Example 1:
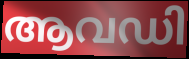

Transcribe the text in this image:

ആവഡി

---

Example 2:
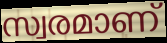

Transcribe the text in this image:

സ്വരമാണ്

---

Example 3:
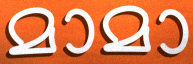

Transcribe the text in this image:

മാമാ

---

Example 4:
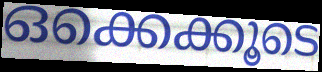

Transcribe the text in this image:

ഒക്കെക്കൂടെ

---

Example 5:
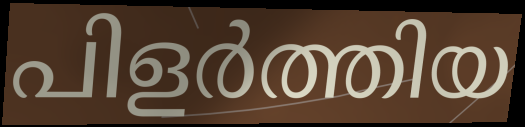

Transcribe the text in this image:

പിളർത്തിയ